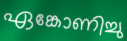
ഏങ്കോണിച്ചു